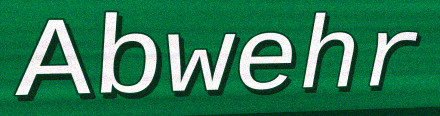
Abwehr